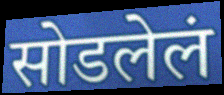
सोडलेलं